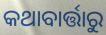
କଥାବାର୍ତ୍ତାରୁ